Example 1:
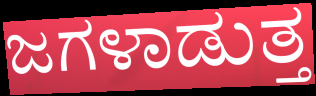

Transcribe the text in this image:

ಜಗಳಾಡುತ್ತ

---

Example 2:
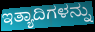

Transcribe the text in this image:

ಇತ್ಯಾದಿಗಳನ್ನು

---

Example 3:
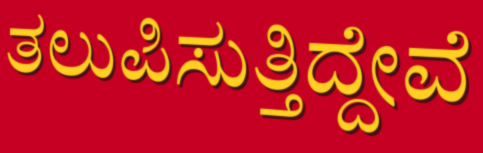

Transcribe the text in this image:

ತಲುಪಿಸುತ್ತಿದ್ದೇವೆ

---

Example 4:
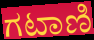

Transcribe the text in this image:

ಗಟಾಣಿ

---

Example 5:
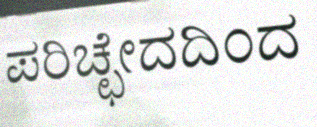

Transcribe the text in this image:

ಪರಿಚ್ಛೇದದಿಂದ